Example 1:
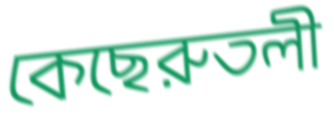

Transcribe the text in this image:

কেছেৰুতলী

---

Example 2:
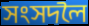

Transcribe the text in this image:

সংসদলৈ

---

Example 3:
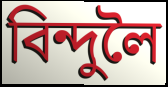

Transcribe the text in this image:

বিন্দুলৈ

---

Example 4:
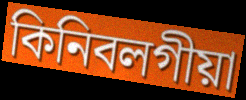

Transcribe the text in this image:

কিনিবলগীয়া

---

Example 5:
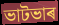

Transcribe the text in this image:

ভাটভাৰ